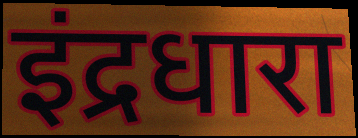
इंद्रधारा